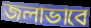
জলাভাবে